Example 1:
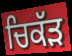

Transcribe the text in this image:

ਚਿਕੱੜ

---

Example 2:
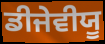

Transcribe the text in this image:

ਡੀਜੇਵੀਯੂ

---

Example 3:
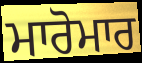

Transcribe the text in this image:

ਮਾਰੋਮਾਰ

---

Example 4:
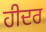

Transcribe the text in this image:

ਹੀਦਰ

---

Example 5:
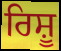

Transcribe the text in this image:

ਰਿਸ਼ੂ